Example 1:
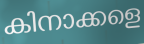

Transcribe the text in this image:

കിനാക്കളെ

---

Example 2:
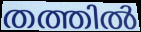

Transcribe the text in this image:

തത്തിൽ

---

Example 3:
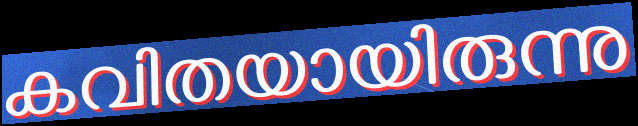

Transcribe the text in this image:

കവിതയായിരുന്നു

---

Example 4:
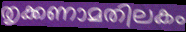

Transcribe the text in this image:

തൃക്കണാമതിലകം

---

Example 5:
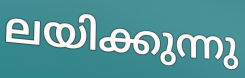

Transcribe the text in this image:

ലയിക്കുന്നു